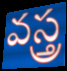
వస్త్ర